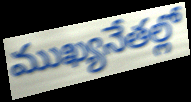
ముఖ్యనేతల్లో